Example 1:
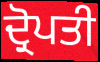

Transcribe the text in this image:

ਦ੍ਰੋਪਤੀ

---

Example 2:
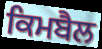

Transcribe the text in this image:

ਕਿਮਬੈਲ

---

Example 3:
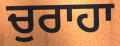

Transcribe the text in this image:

ਚੁਰਾਹਾ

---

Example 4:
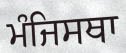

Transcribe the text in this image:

ਮੰਜਿਸਥਾ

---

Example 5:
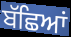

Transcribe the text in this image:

ਬੱਛਿਆਂ